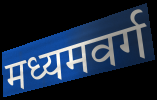
मध्यमवर्ग